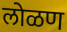
लोळण